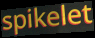
spikelet